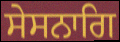
ਸੇਸਨਾਗਿ